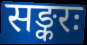
सङ्करः